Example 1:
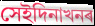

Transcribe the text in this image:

সেইদিনাখনৰ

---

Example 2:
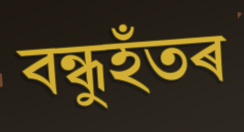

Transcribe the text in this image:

বন্ধুহঁতৰ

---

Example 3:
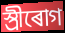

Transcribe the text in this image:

স্ত্ৰীৰোগ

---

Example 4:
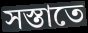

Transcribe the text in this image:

সস্তাতে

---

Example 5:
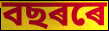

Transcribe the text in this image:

বছৰৰে